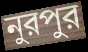
নুরপুর